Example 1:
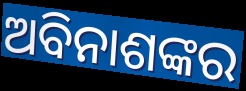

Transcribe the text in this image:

ଅବିନାଶଙ୍କର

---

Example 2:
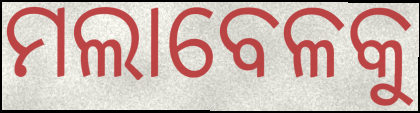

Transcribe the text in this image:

ମଲାବେଳକୁ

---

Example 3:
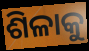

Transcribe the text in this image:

ଶିଳାକୁ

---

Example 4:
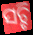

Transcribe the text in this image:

ସଚ୍ଚି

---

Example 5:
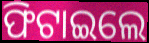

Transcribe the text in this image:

ଫିଟାଇଲେ